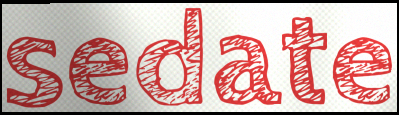
sedate